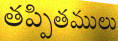
తప్పితములు